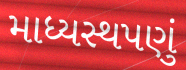
માધ્યસ્થપણું